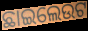
ଛାଇଲେଉଟ